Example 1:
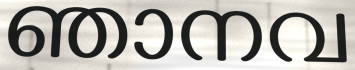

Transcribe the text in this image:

ഞാനവ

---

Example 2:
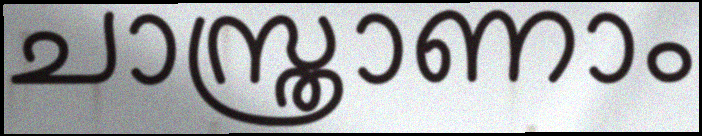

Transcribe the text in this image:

ചാസ്ത്രാണാം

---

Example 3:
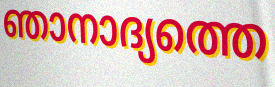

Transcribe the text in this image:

ഞാനാദ്യത്തെ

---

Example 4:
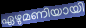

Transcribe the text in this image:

ഏഴുമണിയായി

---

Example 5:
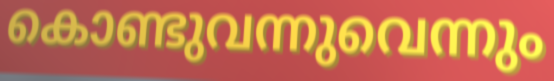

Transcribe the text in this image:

കൊണ്ടുവന്നുവെന്നും